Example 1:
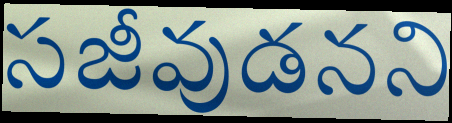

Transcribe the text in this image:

సజీవుడనని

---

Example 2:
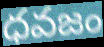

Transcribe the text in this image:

ధవజం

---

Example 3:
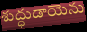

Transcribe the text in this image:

శుద్ధుడాయెను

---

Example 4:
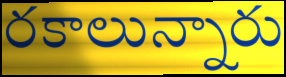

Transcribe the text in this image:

రకాలున్నారు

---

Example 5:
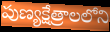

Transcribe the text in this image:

పుణ్యక్షేత్రాలలోని